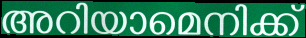
അറിയാമെനിക്ക്